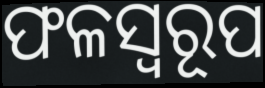
ଫଳସ୍ୱରୂପ